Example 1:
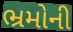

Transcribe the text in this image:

ભ્રમોની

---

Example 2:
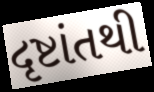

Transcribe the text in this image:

દૃષ્ટાંતથી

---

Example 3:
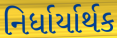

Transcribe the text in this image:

નિર્ધાર્યાર્થક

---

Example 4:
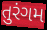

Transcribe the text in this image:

તુરંગમ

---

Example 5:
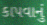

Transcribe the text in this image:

કાપવાનું